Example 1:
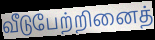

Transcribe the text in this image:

வீடுபேற்றினைத்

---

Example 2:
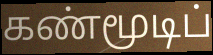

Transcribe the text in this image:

கண்மூடிப்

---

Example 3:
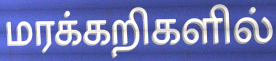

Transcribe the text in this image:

மரக்கறிகளில்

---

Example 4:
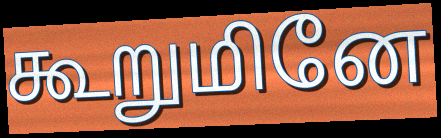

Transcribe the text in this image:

கூறுமினே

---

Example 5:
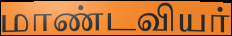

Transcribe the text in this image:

மாண்டவியர்